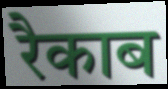
रैकाब